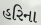
હરિના